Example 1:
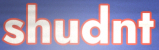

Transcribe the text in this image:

shudnt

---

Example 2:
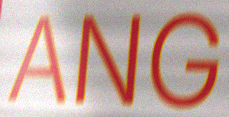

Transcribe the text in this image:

ANG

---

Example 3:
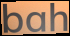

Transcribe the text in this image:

bah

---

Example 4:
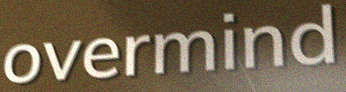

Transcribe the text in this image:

overmind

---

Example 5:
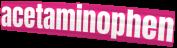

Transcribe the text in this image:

acetaminophen